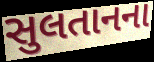
સુલતાનના